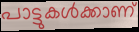
പാട്ടുകൾക്കാണ്